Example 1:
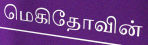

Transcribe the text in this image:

மெகிதோவின்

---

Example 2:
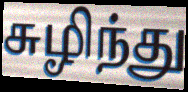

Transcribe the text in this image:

சுழிந்து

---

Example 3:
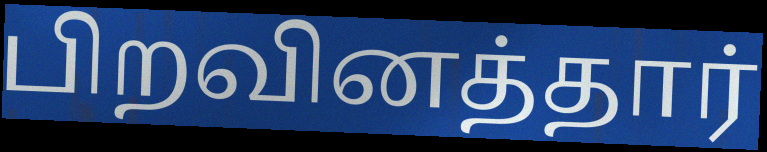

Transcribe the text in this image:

பிறவினத்தார்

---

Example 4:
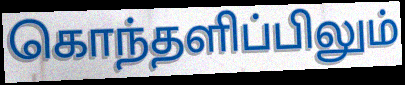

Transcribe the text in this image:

கொந்தளிப்பிலும்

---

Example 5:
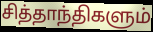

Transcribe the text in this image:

சித்தாந்திகளும்